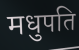
मधुपति